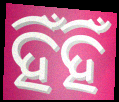
ହିଁହିଁ